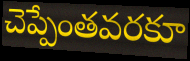
చెప్పేంతవరకూ